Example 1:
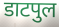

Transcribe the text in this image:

डाटपुल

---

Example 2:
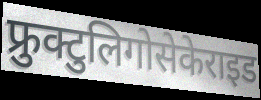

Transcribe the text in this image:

फ्रुक्टुलिगोसेकेराइड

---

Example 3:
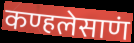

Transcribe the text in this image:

कण्हलेसाणं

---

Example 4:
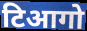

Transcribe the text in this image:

टिआगो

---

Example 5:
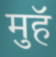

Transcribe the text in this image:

मुहॅ